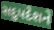
સદુપદેશને